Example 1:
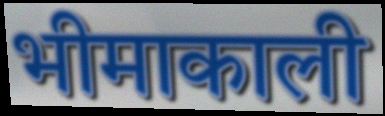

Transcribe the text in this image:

भीमाकाली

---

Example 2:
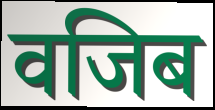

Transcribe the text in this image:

वजिब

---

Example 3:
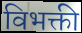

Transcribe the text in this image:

विभक्ती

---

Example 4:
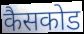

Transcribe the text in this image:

कैसकोड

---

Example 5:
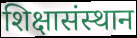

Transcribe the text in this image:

शिक्षासंस्थान